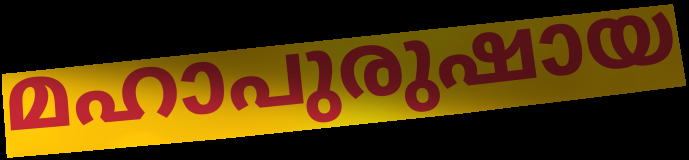
മഹാപുരുഷായ